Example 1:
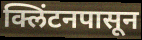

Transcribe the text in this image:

क्लिंटनपासून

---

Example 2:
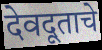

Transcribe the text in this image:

देवदूताचे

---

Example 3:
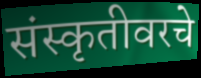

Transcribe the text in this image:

संस्कृतीवरचे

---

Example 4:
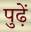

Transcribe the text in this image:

पुढ़ें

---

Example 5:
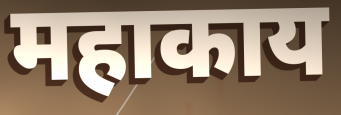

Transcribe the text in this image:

महाकाय